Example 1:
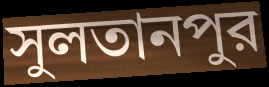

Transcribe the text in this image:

সুলতানপুর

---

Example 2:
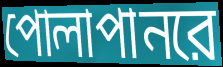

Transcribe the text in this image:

পোলাপানরে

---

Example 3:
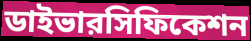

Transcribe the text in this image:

ডাইভারসিফিকেশন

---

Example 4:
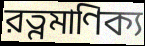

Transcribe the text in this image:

রত্নমাণিক্য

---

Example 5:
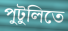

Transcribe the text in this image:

পুটুলিতে